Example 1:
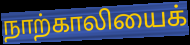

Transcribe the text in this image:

நாற்காலியைக்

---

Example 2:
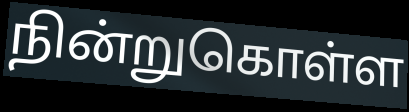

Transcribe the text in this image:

நின்றுகொள்ள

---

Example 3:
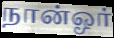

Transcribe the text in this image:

நான்ஓர்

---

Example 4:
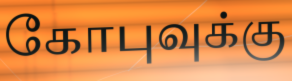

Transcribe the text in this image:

கோபுவுக்கு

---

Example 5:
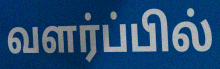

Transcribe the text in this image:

வளர்ப்பில்